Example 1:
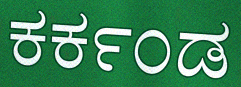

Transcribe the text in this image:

ಕರ್ಕಂಡ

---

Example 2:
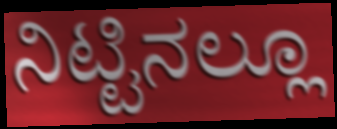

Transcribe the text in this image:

ನಿಟ್ಟಿನಲ್ಲೂ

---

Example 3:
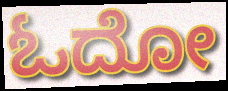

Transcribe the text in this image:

ಓದೋ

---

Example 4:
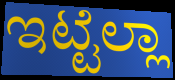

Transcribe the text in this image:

ಇಟ್ಟೆಲ್ಲಾ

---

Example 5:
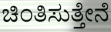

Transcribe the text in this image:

ಚಿಂತಿಸುತ್ತೇನೆ